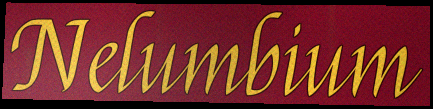
Nelumbium